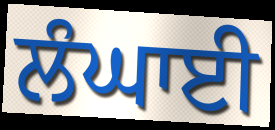
ਲੰਘਾਈ